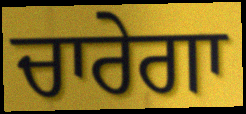
ਚਾਰੇਗਾ